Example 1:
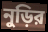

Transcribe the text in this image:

নুড়ির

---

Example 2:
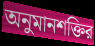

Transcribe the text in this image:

অনুমানশক্তির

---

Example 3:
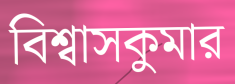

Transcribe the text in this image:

বিশ্বাসকুমার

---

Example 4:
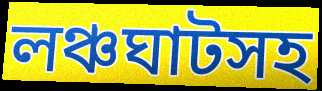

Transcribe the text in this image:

লঞ্চঘাটসহ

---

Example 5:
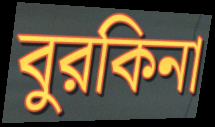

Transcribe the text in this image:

বুরকিনা